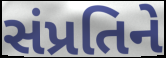
સંપ્રતિને